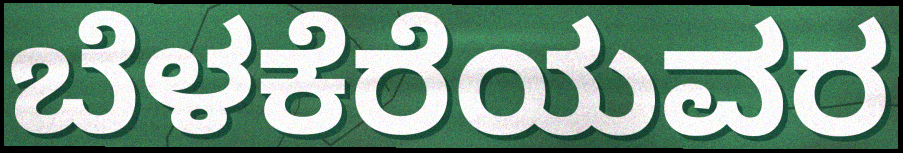
ಬೆಳಕೆರೆಯವರ